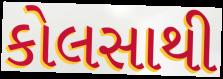
કોલસાથી